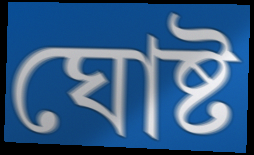
ঘোষ্ট